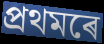
প্ৰথমৰে